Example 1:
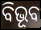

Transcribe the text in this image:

ବିଭୂବ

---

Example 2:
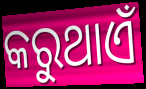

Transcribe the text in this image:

କରୁଥାଏଁ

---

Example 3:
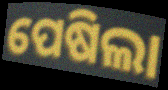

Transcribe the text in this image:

ପେଷିଲା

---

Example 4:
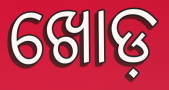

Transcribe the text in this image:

ଖୋଡ଼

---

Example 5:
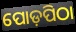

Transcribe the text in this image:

ପୋଡ଼ପିଠା